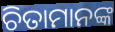
ଚିତାମାନଙ୍କ